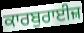
ਕਾਰਬੁਰਾਈਜ਼